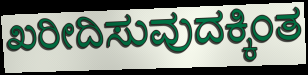
ಖರೀದಿಸುವುದಕ್ಕಿಂತ